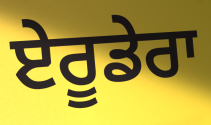
ਏਰੂਡੇਰਾ